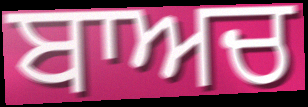
ਬਾਅਚ